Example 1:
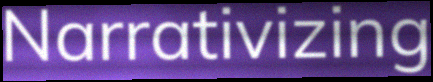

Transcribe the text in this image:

Narrativizing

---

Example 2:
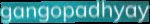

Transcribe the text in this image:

gangopadhyay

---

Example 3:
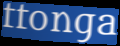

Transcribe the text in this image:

ttonga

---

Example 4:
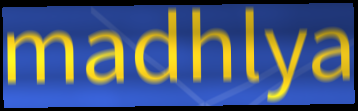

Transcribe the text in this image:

madhlya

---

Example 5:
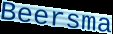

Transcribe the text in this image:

Beersma